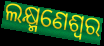
ଲକ୍ଷ୍ମଣେଶ୍ୱର